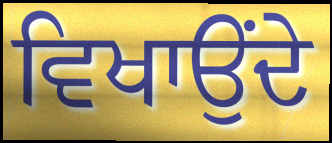
ਵਿਖਾਉੁਂਦੇ